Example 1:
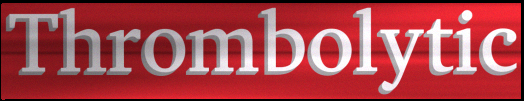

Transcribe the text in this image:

Thrombolytic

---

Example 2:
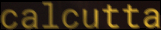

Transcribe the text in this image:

calcutta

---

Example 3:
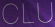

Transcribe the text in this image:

CLU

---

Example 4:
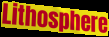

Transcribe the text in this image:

Lithosphere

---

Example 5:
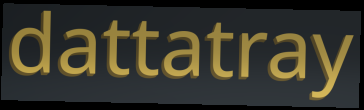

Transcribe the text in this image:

dattatray